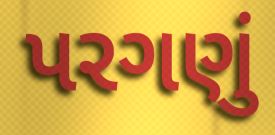
પરગણું